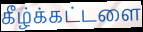
கீழ்க்கட்டளை